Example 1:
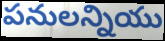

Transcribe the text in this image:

పనులన్నియు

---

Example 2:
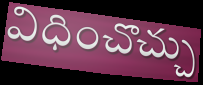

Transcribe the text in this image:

విధించొచ్చు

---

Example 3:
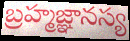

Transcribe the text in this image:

బ్రహ్మజ్ఞానస్య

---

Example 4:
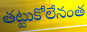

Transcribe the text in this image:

తట్టుకోలేనంత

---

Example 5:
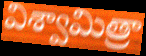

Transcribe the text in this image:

విశ్వామిత్రా